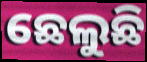
ଛେଲୁଛି